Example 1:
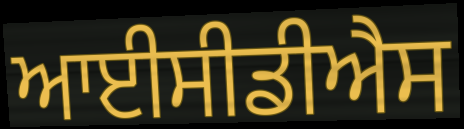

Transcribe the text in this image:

ਆਈਸੀਡੀਐਸ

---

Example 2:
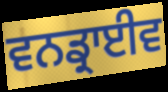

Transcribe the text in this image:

ਵਨਡ੍ਰਾਈਵ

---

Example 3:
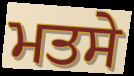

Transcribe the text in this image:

ਮਤਸੇ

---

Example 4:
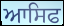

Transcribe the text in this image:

ਆਸਿਫ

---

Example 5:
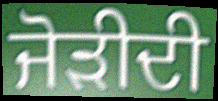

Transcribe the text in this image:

ਜੋੜੀਦੀ